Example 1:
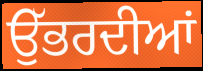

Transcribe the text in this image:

ਉੱਭਰਦੀਆਂ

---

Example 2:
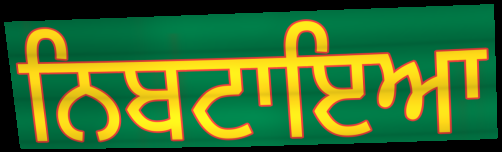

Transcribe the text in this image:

ਨਿਬਟਾਇਆ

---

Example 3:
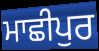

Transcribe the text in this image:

ਮਾਛੀਪੁਰ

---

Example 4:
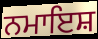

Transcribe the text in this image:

ਨਮਾਇਸ਼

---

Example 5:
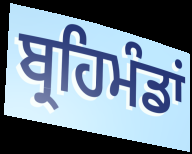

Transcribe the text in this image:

ਬ੍ਰਹਿਮੰਡਾਂ